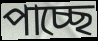
পাচ্ছে